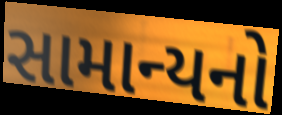
સામાન્યનો